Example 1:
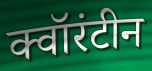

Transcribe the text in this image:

क्वॉरंटीन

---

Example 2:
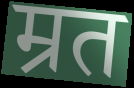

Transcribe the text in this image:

म्रत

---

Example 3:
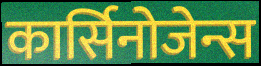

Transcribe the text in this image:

कार्सिनोजेन्स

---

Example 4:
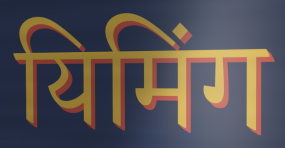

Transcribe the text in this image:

यिमिंग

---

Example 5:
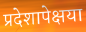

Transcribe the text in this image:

प्रदेशापेक्षया